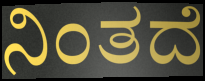
ನಿಂತದೆ